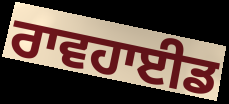
ਰਾਵਹਾਈਡ